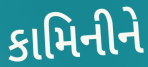
કામિનીને